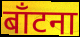
बाँटना